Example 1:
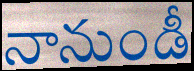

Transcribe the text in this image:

నానుండీ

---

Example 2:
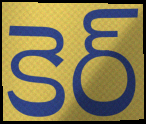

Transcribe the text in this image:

కెర్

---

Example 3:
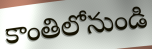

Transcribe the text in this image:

కాంతిలోనుండి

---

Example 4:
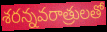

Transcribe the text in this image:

శరన్నవరాత్రులతో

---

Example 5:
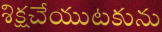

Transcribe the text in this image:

శిక్షచేయుటకును